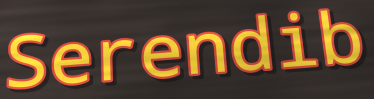
Serendib